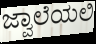
ಜ್ವಾಲೆಯಲಿ